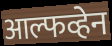
आल्फव्हेन